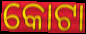
କୋଟା